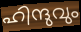
ഹിന്ദുവും